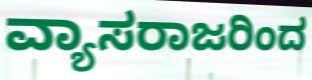
ವ್ಯಾಸರಾಜರಿಂದ